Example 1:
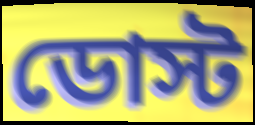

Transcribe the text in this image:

ডোস্ট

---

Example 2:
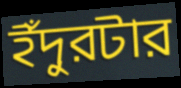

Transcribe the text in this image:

ইঁদুরটার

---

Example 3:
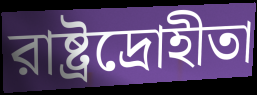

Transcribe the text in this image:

রাষ্ট্রদ্রোহীতা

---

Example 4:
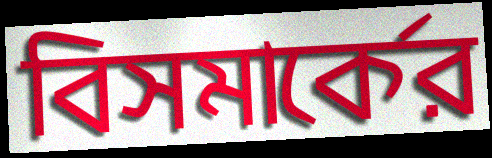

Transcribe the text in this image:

বিসমার্কের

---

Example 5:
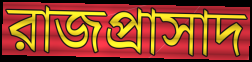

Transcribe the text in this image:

রাজপ্রাসাদ